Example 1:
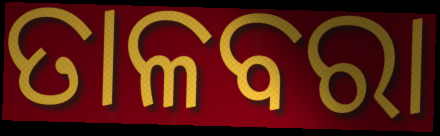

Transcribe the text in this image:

ତାଳବରା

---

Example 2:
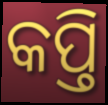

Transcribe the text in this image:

କପ୍ତି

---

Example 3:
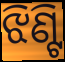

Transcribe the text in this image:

ଝିଣ୍ଟି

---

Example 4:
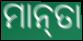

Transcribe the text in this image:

ମାନ୍‌ତା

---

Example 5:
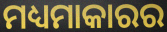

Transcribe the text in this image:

ମଧ୍ୟମାକାରର